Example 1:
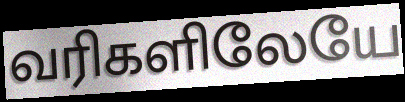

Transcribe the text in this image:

வரிகளிலேயே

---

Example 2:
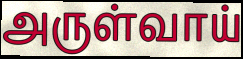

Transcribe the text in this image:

அருள்வாய்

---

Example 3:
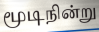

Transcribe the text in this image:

மூடிநின்று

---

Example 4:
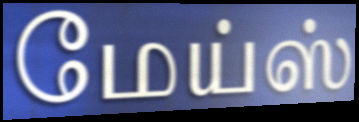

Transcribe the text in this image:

மேய்ஸ்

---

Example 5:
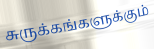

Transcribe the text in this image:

சுருக்கங்களுக்கும்